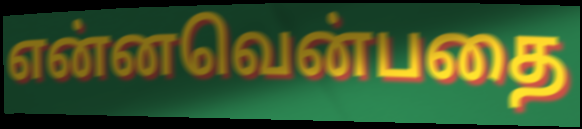
என்னவென்பதை